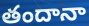
తందానా